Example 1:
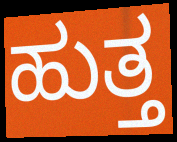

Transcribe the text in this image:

ಹುತ್ತ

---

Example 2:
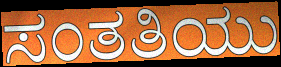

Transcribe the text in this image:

ಸಂತತಿಯು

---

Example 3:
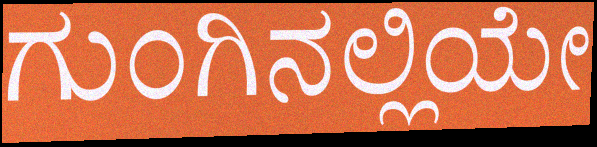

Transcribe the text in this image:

ಗುಂಗಿನಲ್ಲಿಯೇ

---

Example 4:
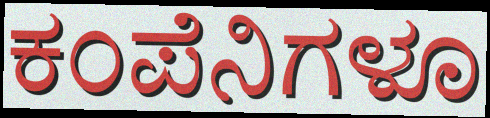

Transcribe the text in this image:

ಕಂಪೆನಿಗಳೂ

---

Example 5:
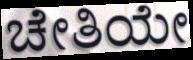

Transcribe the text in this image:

ಚೇತಿಯೇ